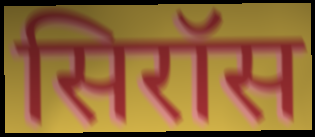
सिरॉस